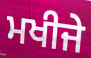
ਮਖੀਜੇ